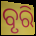
ବୃରି